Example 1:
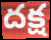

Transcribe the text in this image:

దక్ష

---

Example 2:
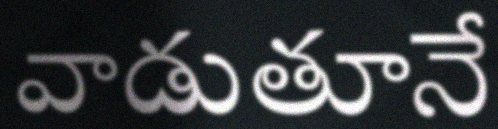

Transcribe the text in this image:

వాడుతూనే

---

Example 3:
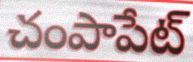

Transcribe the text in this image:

చంపాపేట్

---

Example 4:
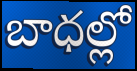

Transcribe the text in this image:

బాధల్లో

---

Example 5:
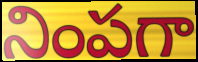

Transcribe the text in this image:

నింపగా